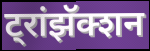
ट्रांझॅक्शन